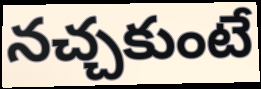
నచ్చకుంటే